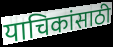
याचिकांसाठी